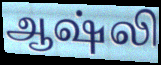
ஆஷ்லி